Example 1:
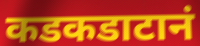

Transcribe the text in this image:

कडकडाटानं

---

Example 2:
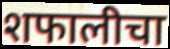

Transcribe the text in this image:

शफालीचा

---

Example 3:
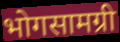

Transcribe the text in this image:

भोगसामग्री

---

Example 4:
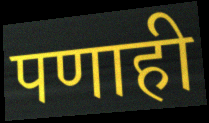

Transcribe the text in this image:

पणाही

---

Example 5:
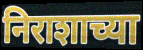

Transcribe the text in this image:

निराशाच्या